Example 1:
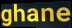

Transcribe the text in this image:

ghane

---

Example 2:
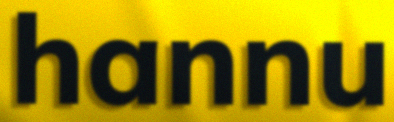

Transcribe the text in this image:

hannu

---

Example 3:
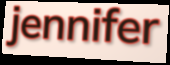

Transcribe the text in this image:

jennifer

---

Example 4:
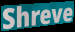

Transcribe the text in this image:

Shreve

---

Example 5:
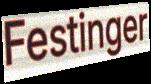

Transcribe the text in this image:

Festinger